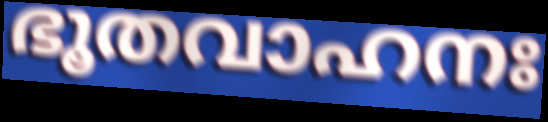
ഭൂതവാഹനഃ